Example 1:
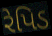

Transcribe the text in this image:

રેપિડ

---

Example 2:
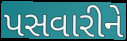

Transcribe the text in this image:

પસવારીને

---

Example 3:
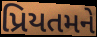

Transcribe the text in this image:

પ્રિયતમને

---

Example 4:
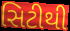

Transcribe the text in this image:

સિટીથી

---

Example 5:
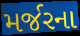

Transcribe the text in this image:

મર્જરના